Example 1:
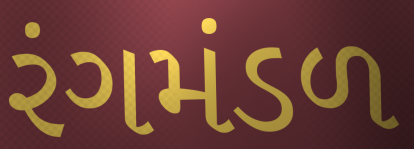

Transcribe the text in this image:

રંગમંડળ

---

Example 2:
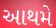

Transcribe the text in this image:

આથમે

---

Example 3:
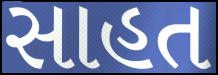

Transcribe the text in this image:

સાહત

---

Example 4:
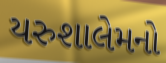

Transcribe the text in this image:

યરુશાલેમનો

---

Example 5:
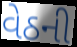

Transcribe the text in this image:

વેઠની